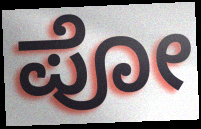
ಪೋ